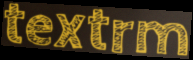
textrm